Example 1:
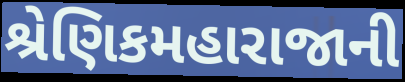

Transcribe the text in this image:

શ્રેણિકમહારાજાની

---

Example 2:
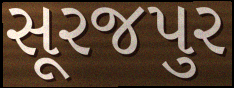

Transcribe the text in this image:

સૂરજપુર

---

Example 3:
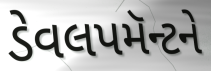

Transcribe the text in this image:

ડેવલપમૅન્ટને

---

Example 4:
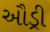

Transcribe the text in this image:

ઔડ્રી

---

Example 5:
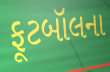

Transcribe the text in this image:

ફૂટબૉલના